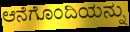
ಆನೆಗೊಂದಿಯನ್ನು